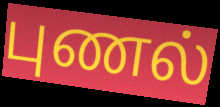
புணல்